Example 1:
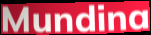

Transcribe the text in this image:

Mundina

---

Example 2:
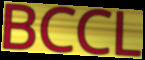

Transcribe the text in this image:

BCCL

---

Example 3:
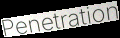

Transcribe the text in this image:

Penetration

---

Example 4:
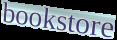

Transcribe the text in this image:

bookstore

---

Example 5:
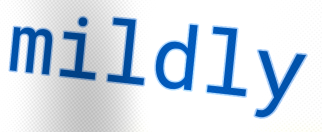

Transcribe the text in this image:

mildly